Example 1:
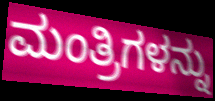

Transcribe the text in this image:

ಮಂತ್ರಿಗಳನ್ನು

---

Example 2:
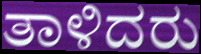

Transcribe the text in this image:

ತಾಳಿದರು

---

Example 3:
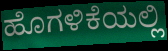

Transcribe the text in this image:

ಹೊಗಳಿಕೆಯಲ್ಲಿ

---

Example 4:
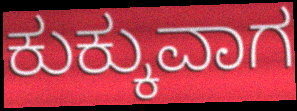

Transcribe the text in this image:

ಕುಕ್ಕುವಾಗ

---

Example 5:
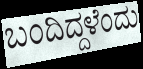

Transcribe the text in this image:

ಬಂದಿದ್ದಳೆಂದು